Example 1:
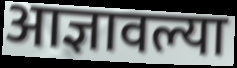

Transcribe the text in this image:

आज्ञावल्या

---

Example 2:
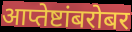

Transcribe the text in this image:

आप्तेष्टांबरोबर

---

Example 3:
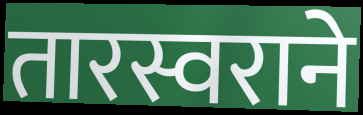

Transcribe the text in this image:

तारस्वराने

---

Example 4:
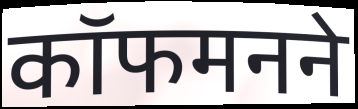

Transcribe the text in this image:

कॉफमनने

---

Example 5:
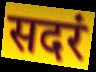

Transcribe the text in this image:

सदरं